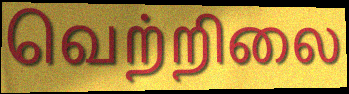
வெற்றிலை